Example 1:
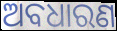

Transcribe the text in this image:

ଅବଧାରଣ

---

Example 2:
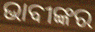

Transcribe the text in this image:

ଭାବୀଙ୍କର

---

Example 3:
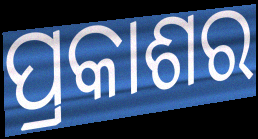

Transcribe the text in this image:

ପ୍ରକାଶର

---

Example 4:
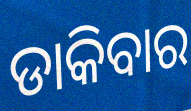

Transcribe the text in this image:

ଡାକିବାର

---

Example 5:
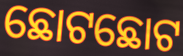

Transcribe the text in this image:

ଛୋଟଛୋଟ